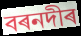
বৰনদীৰ